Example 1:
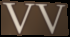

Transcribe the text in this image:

VV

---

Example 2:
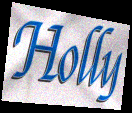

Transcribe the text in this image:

Holly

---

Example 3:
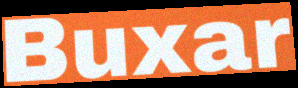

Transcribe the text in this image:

Buxar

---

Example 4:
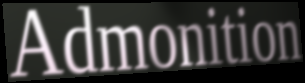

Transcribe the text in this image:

Admonition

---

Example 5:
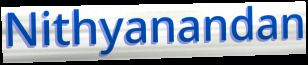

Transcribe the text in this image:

Nithyanandan